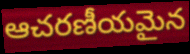
ఆచరణీయమైన